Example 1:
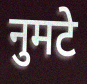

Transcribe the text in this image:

नुमटे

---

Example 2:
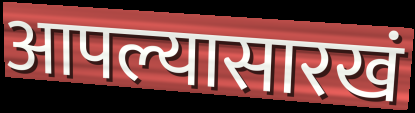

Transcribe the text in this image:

आपल्यासारखं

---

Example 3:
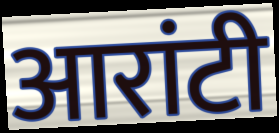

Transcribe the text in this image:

आरांटी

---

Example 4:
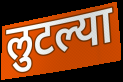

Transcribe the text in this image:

लुटल्या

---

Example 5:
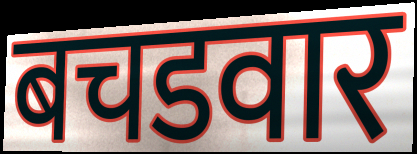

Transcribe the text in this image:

बचडवार